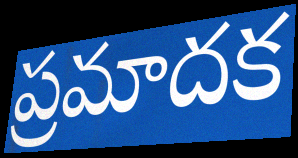
ప్రమాదక